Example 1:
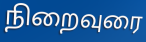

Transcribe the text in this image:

நிறைவுரை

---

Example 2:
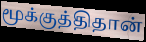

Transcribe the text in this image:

மூக்குத்திதான்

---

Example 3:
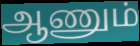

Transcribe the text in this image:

ஆணும்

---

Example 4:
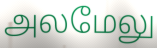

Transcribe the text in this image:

அலமேலு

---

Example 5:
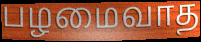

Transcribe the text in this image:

பழமைவாத